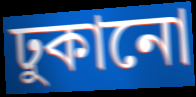
ঢুকানো